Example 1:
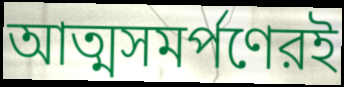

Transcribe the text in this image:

আত্মসমর্পণেরই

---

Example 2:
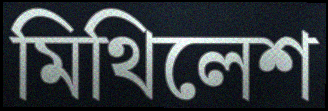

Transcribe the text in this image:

মিথিলেশ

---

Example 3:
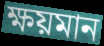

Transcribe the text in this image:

ক্ষয়মান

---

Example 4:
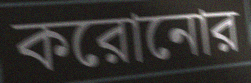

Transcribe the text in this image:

করোনোর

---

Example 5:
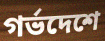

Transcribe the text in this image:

গর্ভদেশে